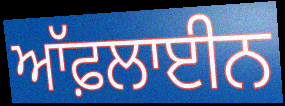
ਆੱਫ਼ਲਾਈਨ